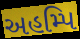
અહમ્પિ